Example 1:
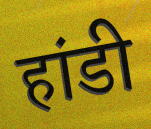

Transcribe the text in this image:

हांडी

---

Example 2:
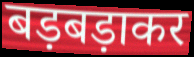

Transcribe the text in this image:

बड़बड़ाकर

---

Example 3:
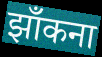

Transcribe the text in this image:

झाँकना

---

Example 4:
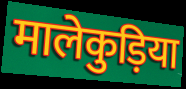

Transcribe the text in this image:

मालेकुड़िया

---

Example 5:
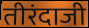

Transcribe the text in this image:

तीरंदाजी